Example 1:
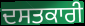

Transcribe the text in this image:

ਦਸਤਕਾਰੀ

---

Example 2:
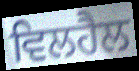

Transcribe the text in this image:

ਵਿਲਹੈਲ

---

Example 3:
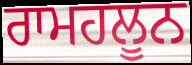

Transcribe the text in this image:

ਰਾਮਹਲੂਨ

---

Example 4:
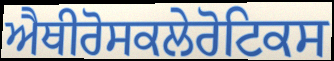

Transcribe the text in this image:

ਐਥੀਰੋਸਕਲੇਰੋਟਿਕਸ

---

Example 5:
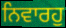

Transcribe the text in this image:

ਨਿਵਾਰਹੁ